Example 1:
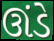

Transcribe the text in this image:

ઊંડે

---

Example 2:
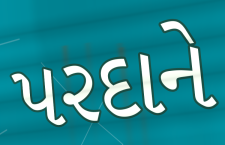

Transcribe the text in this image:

પરદાને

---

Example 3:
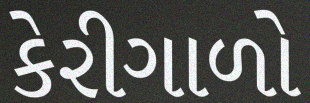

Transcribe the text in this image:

કેરીગાળો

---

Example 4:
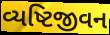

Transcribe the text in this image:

વ્યષ્ટિજીવન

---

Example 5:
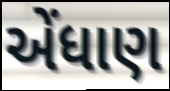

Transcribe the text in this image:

એંધાણ